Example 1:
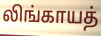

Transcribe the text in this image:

லிங்காயத்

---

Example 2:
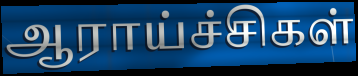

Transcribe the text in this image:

ஆராய்ச்சிகள்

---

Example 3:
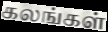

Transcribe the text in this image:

கலங்கள்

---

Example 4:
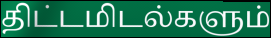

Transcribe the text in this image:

திட்டமிடல்களும்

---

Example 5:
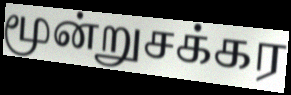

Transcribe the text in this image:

மூன்றுசக்கர